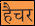
हैचर